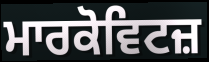
ਮਾਰਕੋਵਿਟਜ਼